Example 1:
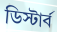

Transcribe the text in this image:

ডিস্টার্ব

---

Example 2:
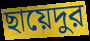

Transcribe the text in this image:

ছায়েদুর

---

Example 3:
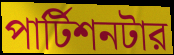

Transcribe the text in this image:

পার্টিশনটার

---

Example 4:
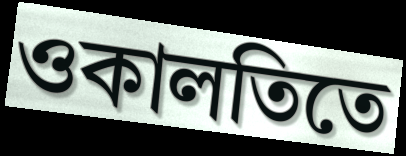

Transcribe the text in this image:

ওকালতিতে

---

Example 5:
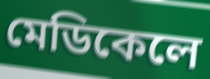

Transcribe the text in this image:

মেডিকেলে